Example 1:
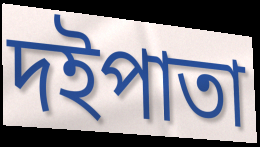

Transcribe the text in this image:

দইপাতা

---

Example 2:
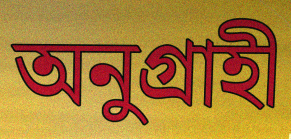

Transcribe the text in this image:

অনুগ্রাহী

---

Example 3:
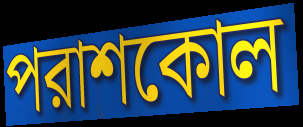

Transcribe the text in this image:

পরাশকোল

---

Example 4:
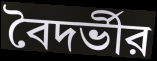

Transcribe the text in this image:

বৈদর্ভীর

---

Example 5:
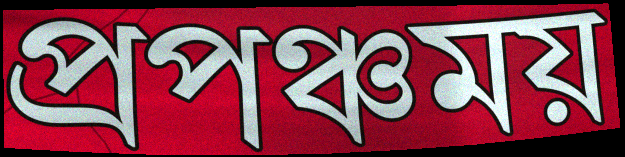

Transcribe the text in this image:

প্রপঞ্চময়